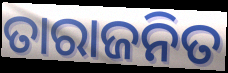
ତାରାଜନିତ